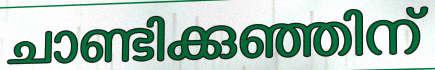
ചാണ്ടിക്കുഞ്ഞിന്